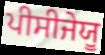
ਪੀਸੀਜੇਯੂ